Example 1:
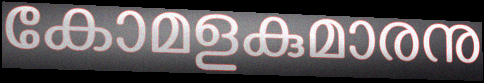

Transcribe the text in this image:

കോമളകുമാരനു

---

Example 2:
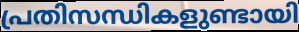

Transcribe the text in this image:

പ്രതിസന്ധികളുണ്ടായി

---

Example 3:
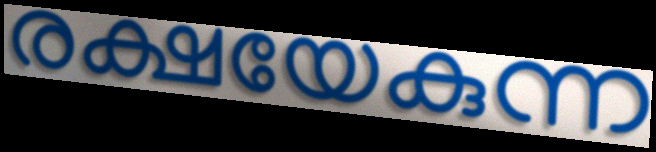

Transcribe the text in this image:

രക്ഷയേകുന്ന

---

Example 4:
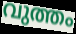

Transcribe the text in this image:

വുത്തം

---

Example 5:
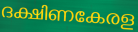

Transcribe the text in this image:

ദക്ഷിണകേരള